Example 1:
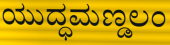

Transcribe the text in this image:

ಯುದ್ಧಮಣ್ಡಲಂ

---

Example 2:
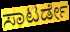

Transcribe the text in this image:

ಸಾಟರ್ಡೇ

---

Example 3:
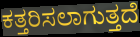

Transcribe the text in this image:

ಕತ್ತರಿಸಲಾಗುತ್ತದೆ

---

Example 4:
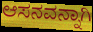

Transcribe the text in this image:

ಆಸನವನ್ನಾಗಿ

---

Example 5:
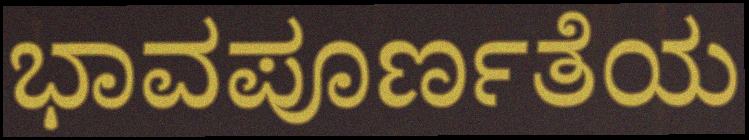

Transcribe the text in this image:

ಭಾವಪೂರ್ಣತೆಯ